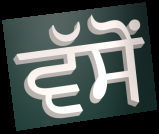
ਵੱਸੋਂ